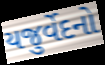
યજુર્વેદનો